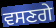
ਵਸਣਗੇ